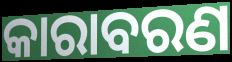
କାରାବରଣ